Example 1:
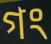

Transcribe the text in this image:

গং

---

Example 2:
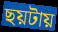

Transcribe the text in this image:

ছয়টায়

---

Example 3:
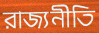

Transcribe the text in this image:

রাজ্যনীতি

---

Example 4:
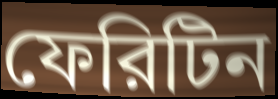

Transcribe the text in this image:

ফেরিটিন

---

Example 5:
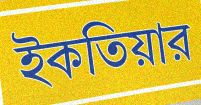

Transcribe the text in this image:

ইকতিয়ার